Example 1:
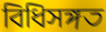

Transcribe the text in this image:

বিধিসঙ্গত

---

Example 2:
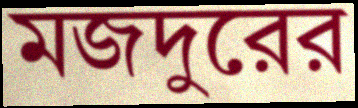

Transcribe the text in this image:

মজদুরের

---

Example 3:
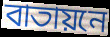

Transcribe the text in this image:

বাতায়নে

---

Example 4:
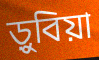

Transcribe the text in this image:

ড়ুবিয়া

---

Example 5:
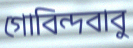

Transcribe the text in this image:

গোবিন্দবাবু